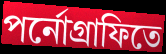
পর্নোগ্রাফিতে